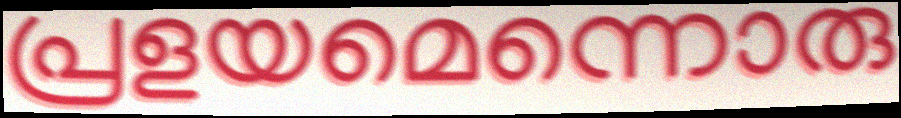
പ്രളയമെന്നൊരു